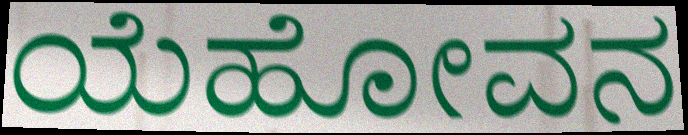
ಯೆಹೋವನ